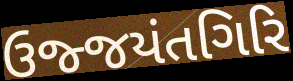
ઉજ્જયંતગિરિ